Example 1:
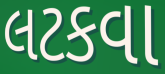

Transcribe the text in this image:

લટકવા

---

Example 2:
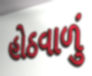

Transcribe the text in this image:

હોઠવાળું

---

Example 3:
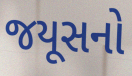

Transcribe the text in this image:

જયૂસનો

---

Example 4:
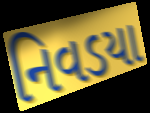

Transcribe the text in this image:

નિવડયા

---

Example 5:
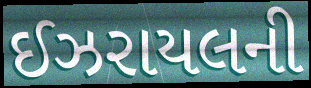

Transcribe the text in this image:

ઈઝરાયલની